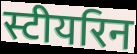
स्टीयरिन